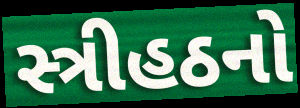
સ્ત્રીહઠનો